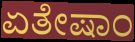
ಏತೇಷಾಂ